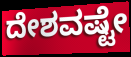
ದೇಶವಷ್ಟೇ